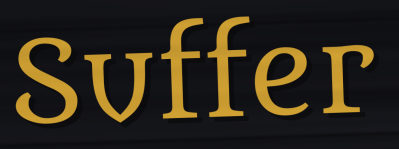
Suffer